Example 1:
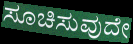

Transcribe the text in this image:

ಸೂಚಿಸುವುದೇ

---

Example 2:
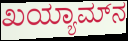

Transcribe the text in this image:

ಖಯ್ಯಾಮ್‌ನ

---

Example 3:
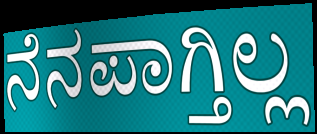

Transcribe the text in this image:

ನೆನಪಾಗ್ತಿಲ್ಲ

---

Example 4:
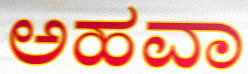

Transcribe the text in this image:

ಅಹವಾ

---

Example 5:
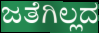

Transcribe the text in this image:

ಜತೆಗಿಲ್ಲದ